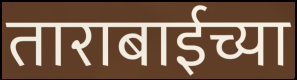
ताराबाईच्या